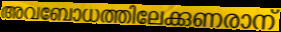
അവബോധത്തിലേക്കുണരാന്